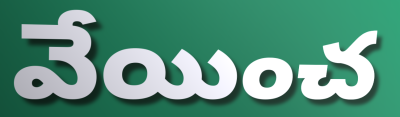
వేయించ